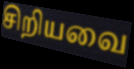
சிறியவை